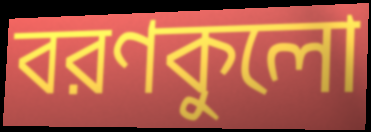
বরণকুলো